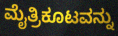
ಮೈತ್ರಿಕೂಟವನ್ನು